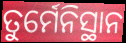
ତୁର୍ମେନିସ୍ଥାନ